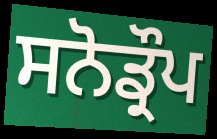
ਸਨੋਡ੍ਰੌਪ